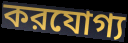
করযোগ্য